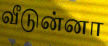
வீடுன்னா